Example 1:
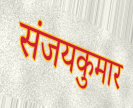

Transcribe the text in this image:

संजयकुमार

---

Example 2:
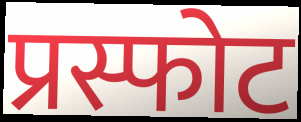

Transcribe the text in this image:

प्रस्फोट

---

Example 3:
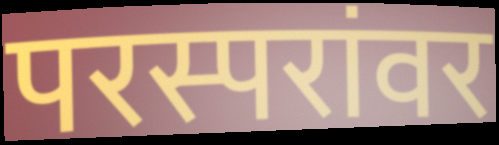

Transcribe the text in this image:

परस्परांवर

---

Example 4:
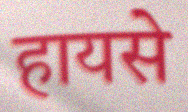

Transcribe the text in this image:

हायसे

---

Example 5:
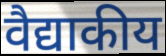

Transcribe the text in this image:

वैद्याकीय